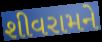
શીવરામને